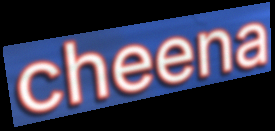
cheena